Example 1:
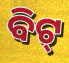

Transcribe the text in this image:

ବିଟ୍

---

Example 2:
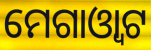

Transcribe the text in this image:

ମେଗାଓ୍ଵାଟ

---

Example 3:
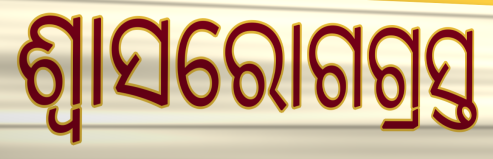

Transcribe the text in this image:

ଶ୍ୱାସରୋଗଗ୍ରସ୍ତ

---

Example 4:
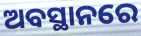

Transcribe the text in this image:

ଅବସ୍ଥାନରେ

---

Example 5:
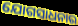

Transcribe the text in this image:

ଯୋଗସାଧନାର